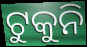
ଟୁକୁନି